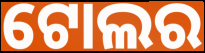
ଟୋଲର